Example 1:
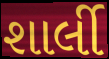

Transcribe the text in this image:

શાર્લી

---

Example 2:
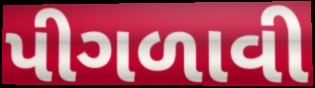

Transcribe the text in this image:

પીગળાવી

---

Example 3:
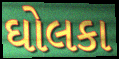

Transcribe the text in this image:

ઘોલકા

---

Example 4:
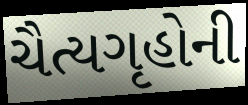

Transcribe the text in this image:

ચૈત્યગૃહોની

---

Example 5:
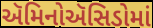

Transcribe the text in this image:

ઍમિનોઍસિડોમાં